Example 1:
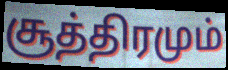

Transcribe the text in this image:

சூத்திரமும்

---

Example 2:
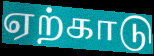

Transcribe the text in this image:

ஏற்காடு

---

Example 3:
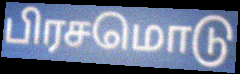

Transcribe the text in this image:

பிரசமொடு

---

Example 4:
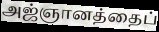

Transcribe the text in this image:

அஜ்ஞானத்தைப்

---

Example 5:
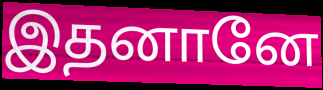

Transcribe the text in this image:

இதனானே